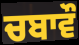
ਚਬਾਵੌ